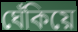
ঘেঁকিয়ে